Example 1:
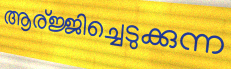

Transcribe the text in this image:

ആര്ജ്ജിച്ചെടുക്കുന്ന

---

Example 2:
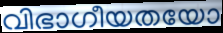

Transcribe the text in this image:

വിഭാഗീയതയോ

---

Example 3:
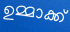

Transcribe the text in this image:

ഉമ്മാക്ക്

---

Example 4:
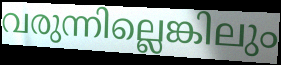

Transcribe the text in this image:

വരുന്നില്ലെങ്കിലും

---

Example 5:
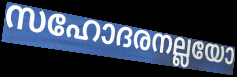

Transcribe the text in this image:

സഹോദരനല്ലയോ